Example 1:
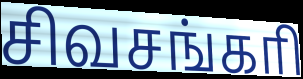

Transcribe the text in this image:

சிவசங்கரி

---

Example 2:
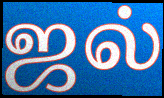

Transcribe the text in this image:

ஜல்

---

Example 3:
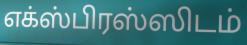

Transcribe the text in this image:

எக்ஸ்பிரஸ்ஸிடம்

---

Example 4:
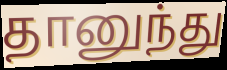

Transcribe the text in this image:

தானுந்து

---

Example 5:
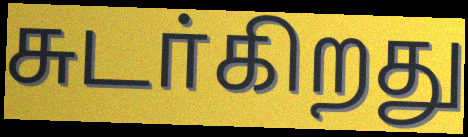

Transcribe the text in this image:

சுடர்கிறது